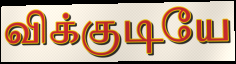
விக்குடியே